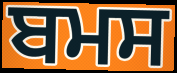
ਬਮਸ